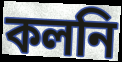
কলনি